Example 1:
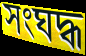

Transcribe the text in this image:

সংঘদ্ধ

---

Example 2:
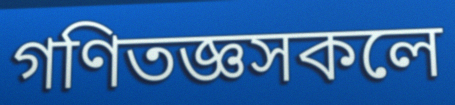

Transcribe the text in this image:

গণিতজ্ঞসকলে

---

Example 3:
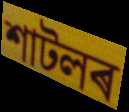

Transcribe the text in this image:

শাটলৰ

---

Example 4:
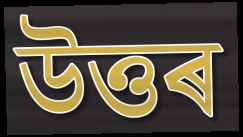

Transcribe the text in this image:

উত্তৰ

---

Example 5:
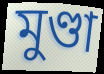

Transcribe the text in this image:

মুণ্ডা